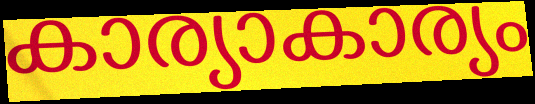
കാര്യാകാര്യം